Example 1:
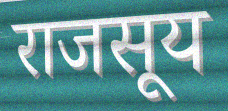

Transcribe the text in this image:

राजसूय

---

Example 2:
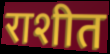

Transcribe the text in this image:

राशीत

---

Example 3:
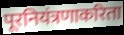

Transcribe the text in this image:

पूरनियंत्रणाकरिता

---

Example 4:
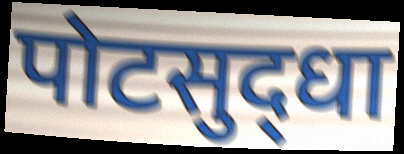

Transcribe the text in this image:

पोटसुद्धा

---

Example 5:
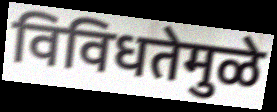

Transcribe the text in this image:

विविधतेमुळे